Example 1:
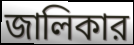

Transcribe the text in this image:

জালিকার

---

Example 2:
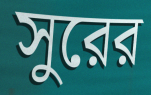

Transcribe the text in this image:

সুরের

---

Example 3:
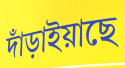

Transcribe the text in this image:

দাঁড়াইয়াছে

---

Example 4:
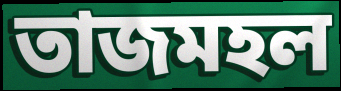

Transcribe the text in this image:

তাজমহল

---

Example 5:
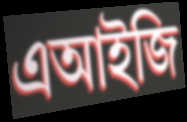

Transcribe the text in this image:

এআইজি